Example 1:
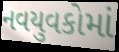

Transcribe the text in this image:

નવયુવકોમાં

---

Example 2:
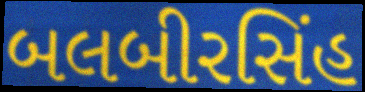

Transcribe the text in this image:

બલબીરસિંહ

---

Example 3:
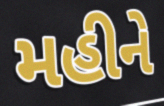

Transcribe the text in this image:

મહીને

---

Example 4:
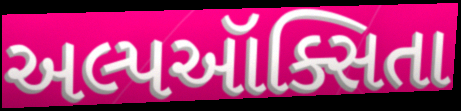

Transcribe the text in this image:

અલ્પઑક્સિતા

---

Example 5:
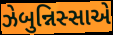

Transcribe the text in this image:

ઝેબુન્નિસ્સાએ